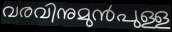
വരവിനുമുൻപുള്ള